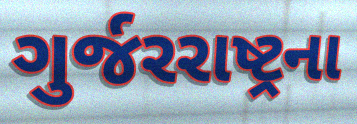
ગુર્જરરાષ્ટ્રના